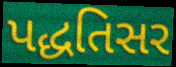
પદ્ધતિસર